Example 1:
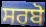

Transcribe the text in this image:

ਸਰਬੋ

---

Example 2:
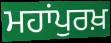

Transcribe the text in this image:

ਮਹਾਂਪੁਰਖ਼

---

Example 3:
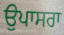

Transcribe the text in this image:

ਉਪਾਸਰਾ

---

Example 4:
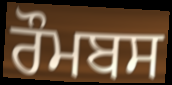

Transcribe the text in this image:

ਰੌਮਬਸ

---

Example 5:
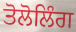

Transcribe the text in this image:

ਤੋਲੋਲਿੰਗ